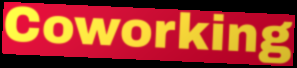
Coworking